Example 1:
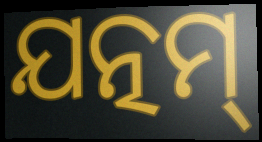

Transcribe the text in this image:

ଯତ୍ନମ୍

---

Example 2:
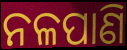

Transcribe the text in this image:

ନଳପାଣି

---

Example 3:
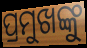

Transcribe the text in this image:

ପ୍ରମୁଖଙ୍କୁ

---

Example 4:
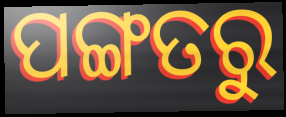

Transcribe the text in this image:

ପଙ୍ଗତରୁ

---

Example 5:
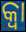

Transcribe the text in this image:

କ୍ଵା